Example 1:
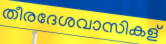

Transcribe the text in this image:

തീരദേശവാസികള്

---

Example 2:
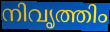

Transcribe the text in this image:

നിവൃത്തിം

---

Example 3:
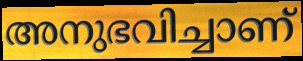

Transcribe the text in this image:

അനുഭവിച്ചാണ്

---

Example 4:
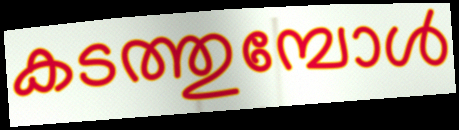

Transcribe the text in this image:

കടത്തുമ്പോൾ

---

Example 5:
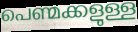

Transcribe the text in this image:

പെണ്മക്കളുള്ള